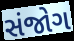
સંજોગ